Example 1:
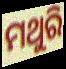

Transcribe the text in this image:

ମଥୁରି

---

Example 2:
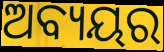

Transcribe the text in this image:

ଅବ୍ୟୟର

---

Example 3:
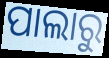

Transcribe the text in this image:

ପାଲାରୁ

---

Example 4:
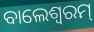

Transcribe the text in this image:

ବାଲେଶ୍ବରମ୍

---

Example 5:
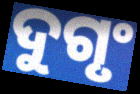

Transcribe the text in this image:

ଦୁଗୃଂ